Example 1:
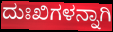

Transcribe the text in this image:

ದುಃಖಿಗಳನ್ನಾಗಿ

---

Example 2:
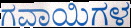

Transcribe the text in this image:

ಗವಾಯಿಗಳ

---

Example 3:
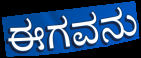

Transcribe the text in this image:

ಈಗವನು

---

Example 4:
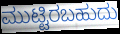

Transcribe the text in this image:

ಮುಟ್ಟಿರಬಹುದು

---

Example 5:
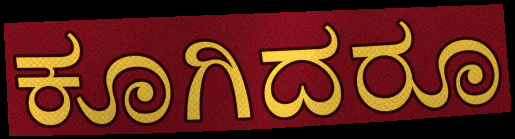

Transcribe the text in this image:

ಕೂಗಿದರೂ